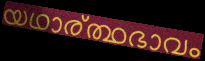
യഥാര്ത്ഥഭാവം